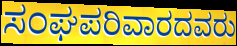
ಸಂಘಪರಿವಾರದವರು